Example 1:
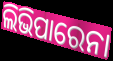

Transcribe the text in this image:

ଲିଭିପାରେନା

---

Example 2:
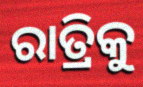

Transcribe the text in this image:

ରାତ୍ରିକୁ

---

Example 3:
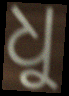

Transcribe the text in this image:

ଧୁ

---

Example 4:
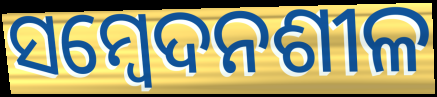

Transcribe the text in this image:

ସମ୍ବେଦନଶୀଳ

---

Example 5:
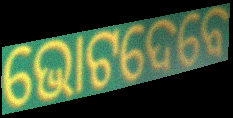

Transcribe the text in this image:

ଭୋଟଦେବେ